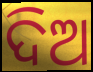
ଦିଅ